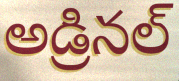
అడ్రినల్